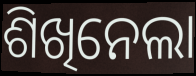
ଶିଖିନେଲା